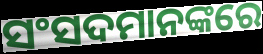
ସଂସଦମାନଙ୍କରେ